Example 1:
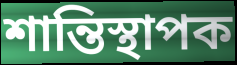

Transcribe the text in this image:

শান্তিস্থাপক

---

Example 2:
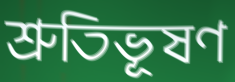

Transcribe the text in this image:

শ্রুতিভূষণ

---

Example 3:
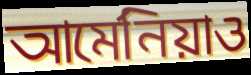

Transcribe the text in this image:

আর্মেনিয়াও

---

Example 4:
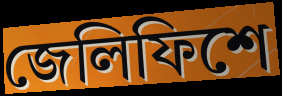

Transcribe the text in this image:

জেলিফিশে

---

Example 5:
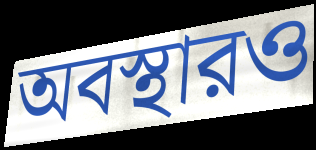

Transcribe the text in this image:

অবস্থারও